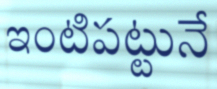
ఇంటిపట్టునే